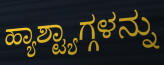
ಹ್ಯಾಶ್ಟ್ಯಾಗ್ಗಳನ್ನು